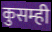
कुसम्ही